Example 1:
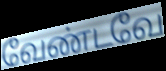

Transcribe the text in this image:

வேண்டவே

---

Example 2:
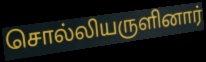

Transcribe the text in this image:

சொல்லியருளினார்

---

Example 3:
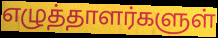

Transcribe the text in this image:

எழுத்தாளர்களுள்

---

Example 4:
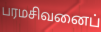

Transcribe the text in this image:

பரமசிவனைப்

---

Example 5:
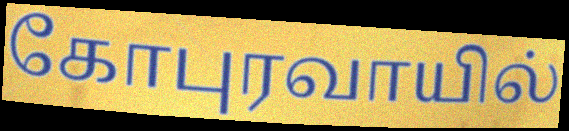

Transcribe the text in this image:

கோபுரவாயில்